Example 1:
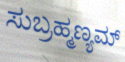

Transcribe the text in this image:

ಸುಬ್ರಹ್ಮಣ್ಯಮ್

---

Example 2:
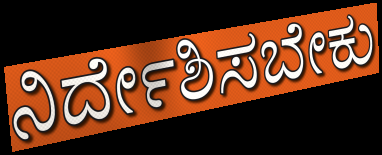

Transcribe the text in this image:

ನಿರ್ದೇಶಿಸಬೇಕು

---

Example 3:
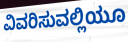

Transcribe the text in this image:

ವಿವರಿಸುವಲ್ಲಿಯೂ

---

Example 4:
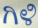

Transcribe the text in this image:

ಗಿಳಿ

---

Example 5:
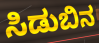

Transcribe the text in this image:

ಸಿಡುಬಿನ